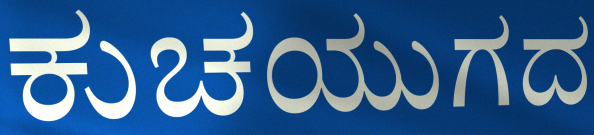
ಕುಚಯುಗದ